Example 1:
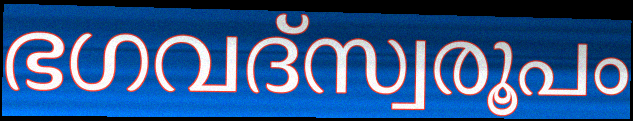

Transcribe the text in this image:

ഭഗവദ്സ്വരൂപം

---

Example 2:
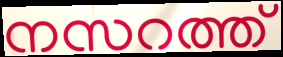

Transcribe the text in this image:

നസറത്ത്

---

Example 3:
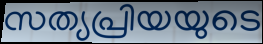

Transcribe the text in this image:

സത്യപ്രിയയുടെ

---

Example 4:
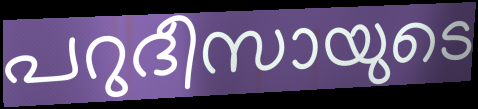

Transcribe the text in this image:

പറുദീസായുടെ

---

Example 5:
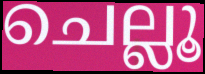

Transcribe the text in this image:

ചെല്ലൂ